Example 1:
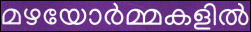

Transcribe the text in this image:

മഴയോർമ്മകളിൽ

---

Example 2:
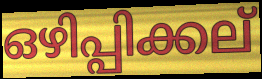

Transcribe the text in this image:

ഒഴിപ്പിക്കല്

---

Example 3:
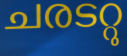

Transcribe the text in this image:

ചരടറ്റു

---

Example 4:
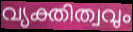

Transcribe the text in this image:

വ്യക്തിത്വവും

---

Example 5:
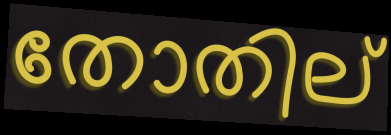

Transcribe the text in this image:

തോതില്